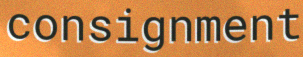
consignment